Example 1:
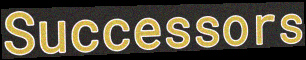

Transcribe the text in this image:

Successors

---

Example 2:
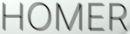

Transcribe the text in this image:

HOMER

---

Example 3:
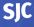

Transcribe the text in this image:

SJC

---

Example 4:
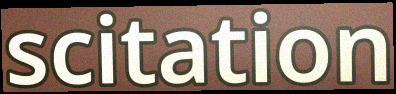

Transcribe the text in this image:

scitation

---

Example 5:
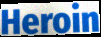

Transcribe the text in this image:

Heroin